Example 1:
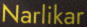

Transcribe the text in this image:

Narlikar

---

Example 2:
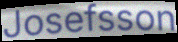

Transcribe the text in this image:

Josefsson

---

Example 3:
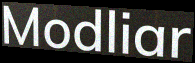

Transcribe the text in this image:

Modliar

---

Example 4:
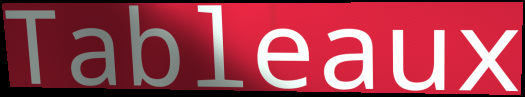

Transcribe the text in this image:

Tableaux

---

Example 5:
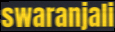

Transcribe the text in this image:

swaranjali